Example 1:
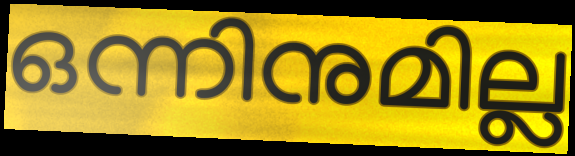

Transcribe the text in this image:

ഒന്നിനുമില്ല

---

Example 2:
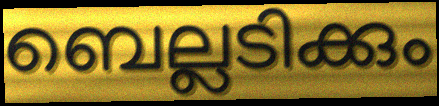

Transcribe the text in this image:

ബെല്ലടിക്കും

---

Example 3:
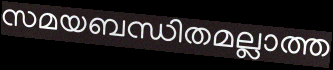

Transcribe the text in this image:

സമയബന്ധിതമല്ലാത്ത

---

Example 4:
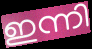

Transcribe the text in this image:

ഇന്നി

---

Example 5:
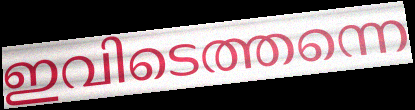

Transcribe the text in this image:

ഇവിടെത്തന്നെ